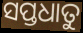
ସପ୍ତଧାତୁ